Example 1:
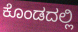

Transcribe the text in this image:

ಕೊಂಡದಲ್ಲಿ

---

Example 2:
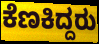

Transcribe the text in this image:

ಕೆಣಕಿದ್ದರು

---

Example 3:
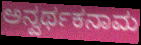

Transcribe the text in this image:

ಅನ್ವರ್ಥಕನಾಮ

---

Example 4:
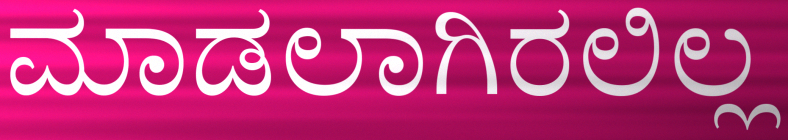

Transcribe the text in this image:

ಮಾಡಲಾಗಿರಲಿಲ್ಲ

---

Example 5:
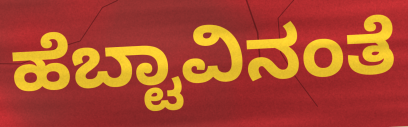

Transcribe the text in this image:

ಹೆಬ್ಟಾವಿನಂತೆ